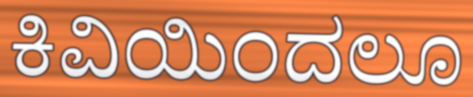
ಕಿವಿಯಿಂದಲೂ